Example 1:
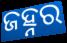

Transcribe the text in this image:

ଜହ୍ନର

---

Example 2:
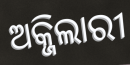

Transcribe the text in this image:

ଅକ୍ଜିଲାରୀ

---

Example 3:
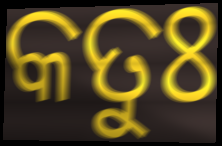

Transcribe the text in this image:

କତୁଃ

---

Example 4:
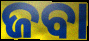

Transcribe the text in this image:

ଜବା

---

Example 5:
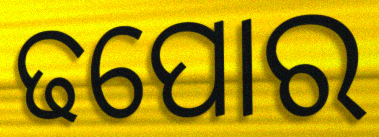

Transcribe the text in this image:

ଢପୋର